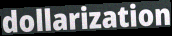
dollarization